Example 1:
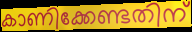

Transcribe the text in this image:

കാണിക്കേണ്ടതിന്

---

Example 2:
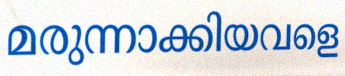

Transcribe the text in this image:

മരുന്നാക്കിയവളെ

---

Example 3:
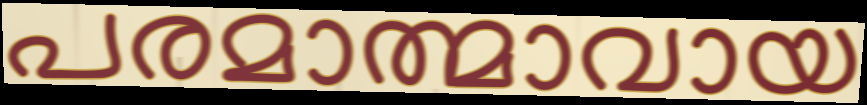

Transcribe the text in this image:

പരമാത്മാവായ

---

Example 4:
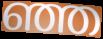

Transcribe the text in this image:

ഞ്ഞ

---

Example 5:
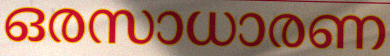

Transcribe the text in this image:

ഒരസാധാരണ